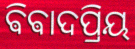
ଵିଵାଦପ୍ରିୟ